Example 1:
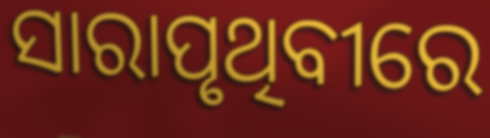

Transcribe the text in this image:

ସାରାପୃଥିବୀରେ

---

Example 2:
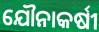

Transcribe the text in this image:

ଯୌନାକର୍ଷୀ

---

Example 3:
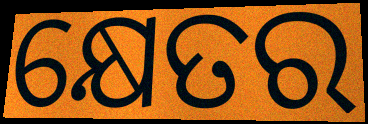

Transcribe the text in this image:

କ୍ଷେତର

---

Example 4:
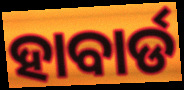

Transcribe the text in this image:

ହାବାର୍ଡ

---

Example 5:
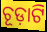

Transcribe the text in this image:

ଚୂଡ଼ାଟି